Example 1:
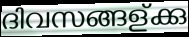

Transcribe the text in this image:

ദിവസങ്ങള്ക്കു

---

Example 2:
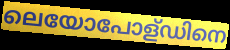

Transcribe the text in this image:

ലെയോപോള്ഡിനെ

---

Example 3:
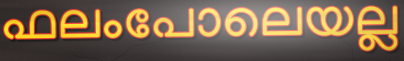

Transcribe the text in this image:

ഫലംപോലെയല്ല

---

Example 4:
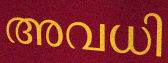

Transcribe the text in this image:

അവധി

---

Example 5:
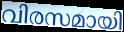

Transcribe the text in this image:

വിരസമായി